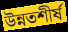
উন্নতশীর্ষ